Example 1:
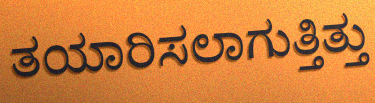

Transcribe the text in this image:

ತಯಾರಿಸಲಾಗುತ್ತಿತ್ತು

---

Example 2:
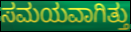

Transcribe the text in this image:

ಸಮಯವಾಗಿತ್ತು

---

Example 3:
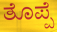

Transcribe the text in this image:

ತೊಪ್ಪೆ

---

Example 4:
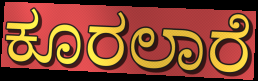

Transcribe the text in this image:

ಕೂರಲಾರೆ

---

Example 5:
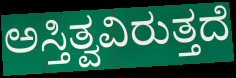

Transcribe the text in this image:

ಅಸ್ತಿತ್ವವಿರುತ್ತದೆ